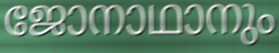
ജോനാഥാനും